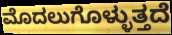
ಮೊದಲುಗೊಳ್ಳುತ್ತದೆ